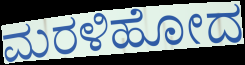
ಮರಳಿಹೋದ